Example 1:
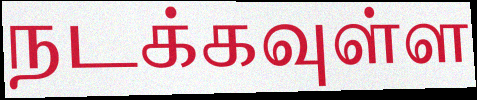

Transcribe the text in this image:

நடக்கவுள்ள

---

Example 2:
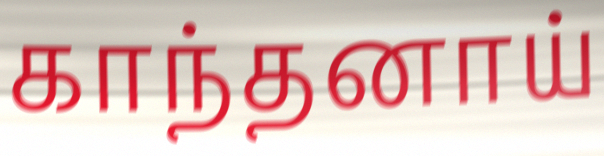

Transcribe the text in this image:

காந்தனாய்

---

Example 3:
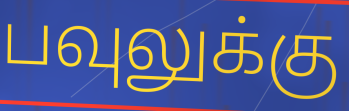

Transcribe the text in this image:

பவுலுக்கு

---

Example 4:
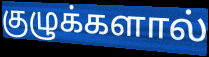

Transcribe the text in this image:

குழுக்களால்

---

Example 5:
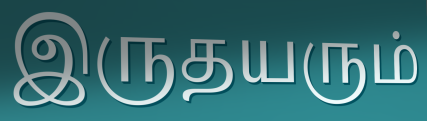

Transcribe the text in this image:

இருதயரும்